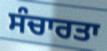
ਸੰਚਾਰਤਾ